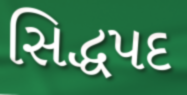
સિદ્ધપદ